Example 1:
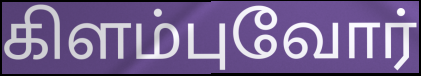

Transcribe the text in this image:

கிளம்புவோர்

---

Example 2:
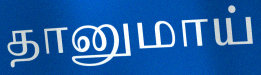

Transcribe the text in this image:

தானுமாய்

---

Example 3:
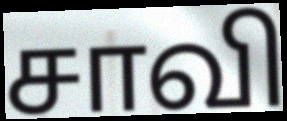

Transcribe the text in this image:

சாவி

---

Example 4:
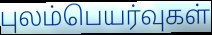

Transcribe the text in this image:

புலம்பெயர்வுகள்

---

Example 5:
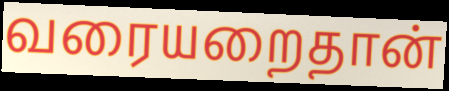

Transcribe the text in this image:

வரையறைதான்